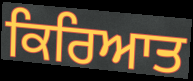
ਕਿਰਿਆਤ